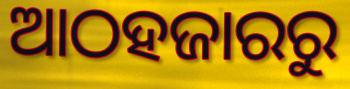
ଆଠହଜାରରୁ